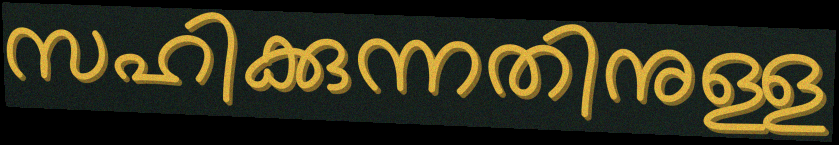
സഹിക്കുന്നതിനുള്ള